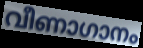
വീണാഗാനം